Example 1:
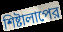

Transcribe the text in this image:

শিষ্টালাপের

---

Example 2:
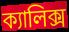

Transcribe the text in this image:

ক্যালিক্স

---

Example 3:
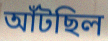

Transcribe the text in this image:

আঁটছিল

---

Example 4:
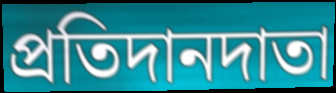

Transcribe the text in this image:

প্রতিদানদাতা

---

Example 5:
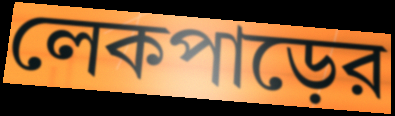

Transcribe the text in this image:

লেকপাড়ের